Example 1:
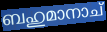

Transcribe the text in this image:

ബഹുമാനാച്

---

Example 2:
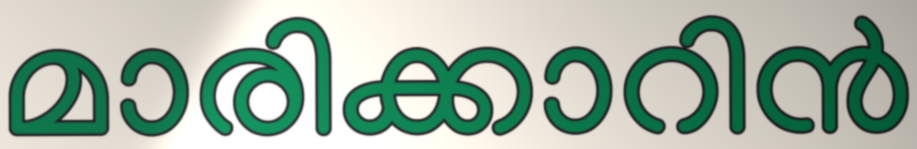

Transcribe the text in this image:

മാരിക്കാറിൻ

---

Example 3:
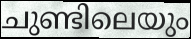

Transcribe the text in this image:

ചുണ്ടിലെയും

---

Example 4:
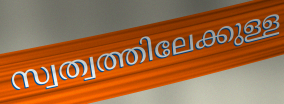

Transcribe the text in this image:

സ്വത്വത്തിലേക്കുള്ള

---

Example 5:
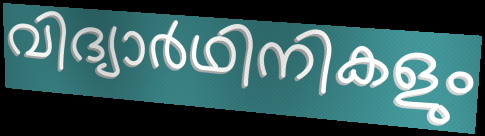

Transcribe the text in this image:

വിദ്യാർഥിനികളും